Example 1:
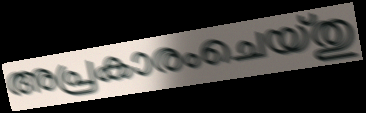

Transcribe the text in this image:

അപ്രകാരംചെയ്തു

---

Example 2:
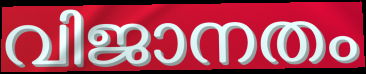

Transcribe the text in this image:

വിജാനതം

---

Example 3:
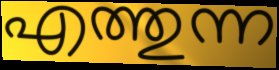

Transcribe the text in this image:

എത്തുന്ന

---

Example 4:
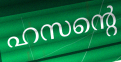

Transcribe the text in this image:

ഹസന്റെ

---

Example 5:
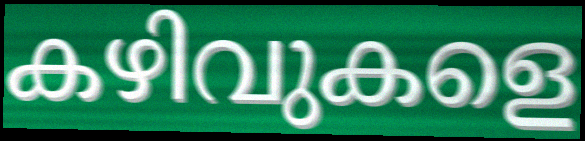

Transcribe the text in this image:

കഴിവുകളെ